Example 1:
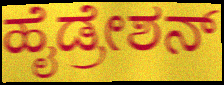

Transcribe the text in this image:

ಹೈಡ್ರೇಶನ್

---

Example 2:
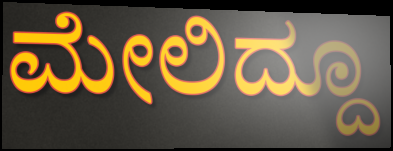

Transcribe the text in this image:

ಮೇಲಿದ್ದೂ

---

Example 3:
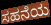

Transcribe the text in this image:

ಸಹನೆಯ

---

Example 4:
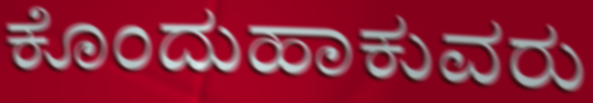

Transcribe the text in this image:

ಕೊಂದುಹಾಕುವರು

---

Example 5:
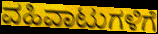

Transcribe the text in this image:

ವಹಿವಾಟುಗಳಿಗೆ